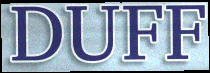
DUFF